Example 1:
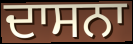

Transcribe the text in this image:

ਦਾਸਨਾ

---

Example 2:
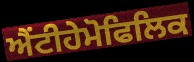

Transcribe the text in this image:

ਐਂਟੀਹੇਮੋਫਿਲਿਕ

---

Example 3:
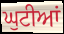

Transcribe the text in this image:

ਘੁਟੀਆਂ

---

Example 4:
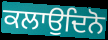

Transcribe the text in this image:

ਕਲਾਉਦਿਨੋ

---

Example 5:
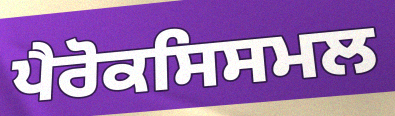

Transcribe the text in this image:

ਪੈਰੋਕਸਿਸਮਲ